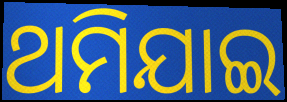
ଥମିଯାଇ